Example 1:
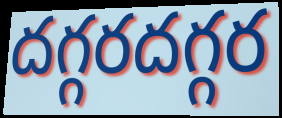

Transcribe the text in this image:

దగ్గరదగ్గర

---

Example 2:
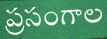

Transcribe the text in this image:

ప్రసంగాల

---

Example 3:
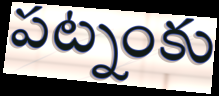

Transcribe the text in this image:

పట్నంకు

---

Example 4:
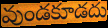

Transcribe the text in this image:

వుండకూడదు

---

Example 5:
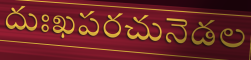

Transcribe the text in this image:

దుఃఖపరచునెడల